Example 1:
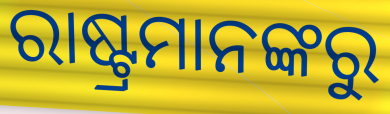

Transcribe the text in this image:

ରାଷ୍ଟ୍ରମାନଙ୍କରୁ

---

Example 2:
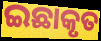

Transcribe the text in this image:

ଇଛାକୃତ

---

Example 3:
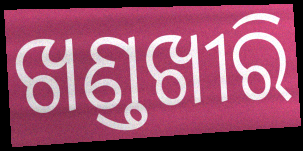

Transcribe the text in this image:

ଖଣ୍ଡଖୀରି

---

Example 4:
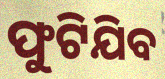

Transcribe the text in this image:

ଫୁଟିଯିବ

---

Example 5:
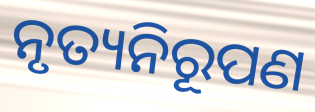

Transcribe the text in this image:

ନୃତ୍ୟନିରୂପଣ